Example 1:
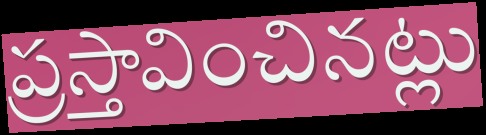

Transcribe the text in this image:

ప్రస్తావించినట్లు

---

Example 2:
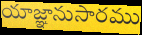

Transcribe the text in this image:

యాజ్ఞానుసారము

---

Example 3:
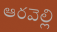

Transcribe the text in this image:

ఆరవెల్లి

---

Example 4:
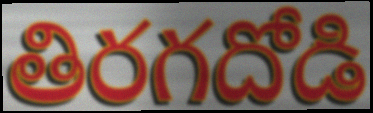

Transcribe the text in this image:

తిరగదోడి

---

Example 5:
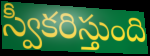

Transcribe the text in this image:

స్వీకరిస్తుంది